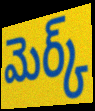
మెర్క్